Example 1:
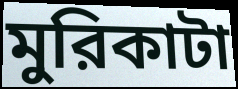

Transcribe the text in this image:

মুরিকাটা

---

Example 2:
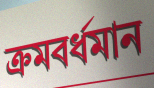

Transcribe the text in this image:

ক্রমবর্ধমান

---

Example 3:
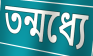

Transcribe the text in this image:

তন্মধ্যে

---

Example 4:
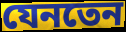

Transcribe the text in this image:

যেনতেন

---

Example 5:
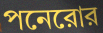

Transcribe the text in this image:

পনেরোর